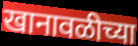
खानावळीच्या